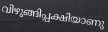
വിഴുങ്ങിപ്പക്ഷിയാണു